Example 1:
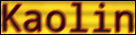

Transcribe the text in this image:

Kaolin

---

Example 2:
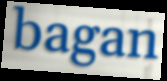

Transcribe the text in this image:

bagan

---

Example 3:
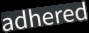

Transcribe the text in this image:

adhered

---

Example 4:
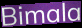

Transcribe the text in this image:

Bimala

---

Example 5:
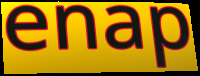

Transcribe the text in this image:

enap